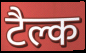
टैल्क